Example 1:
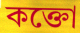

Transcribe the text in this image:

কক্তো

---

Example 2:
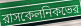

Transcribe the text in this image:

রাসকেলনিকভের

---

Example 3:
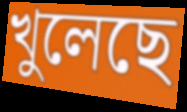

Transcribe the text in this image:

খুলেছে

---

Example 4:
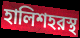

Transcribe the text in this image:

হালিশহরস্থ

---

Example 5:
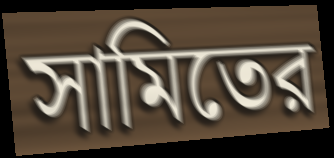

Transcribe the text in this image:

সামিতের